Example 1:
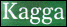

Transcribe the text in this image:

Kagga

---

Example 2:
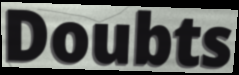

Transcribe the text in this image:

Doubts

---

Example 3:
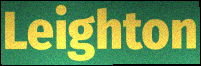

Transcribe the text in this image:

Leighton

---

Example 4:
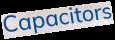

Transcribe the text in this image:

Capacitors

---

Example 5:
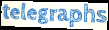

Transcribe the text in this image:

telegraphs